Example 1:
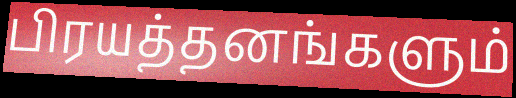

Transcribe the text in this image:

பிரயத்தனங்களும்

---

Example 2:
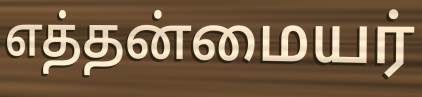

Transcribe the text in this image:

எத்தன்மையர்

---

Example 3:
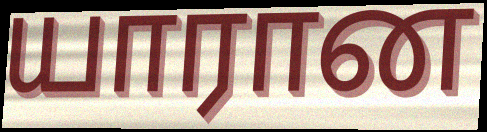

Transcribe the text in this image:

யாரான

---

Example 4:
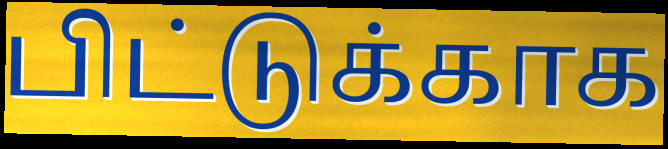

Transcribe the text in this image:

பிட்டுக்காக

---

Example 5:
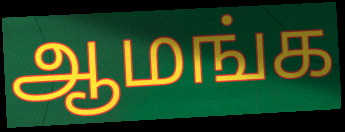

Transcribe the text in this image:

ஆமங்க